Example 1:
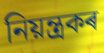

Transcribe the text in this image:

নিয়ন্ত্ৰকৰ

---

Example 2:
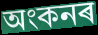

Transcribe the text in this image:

অংকনৰ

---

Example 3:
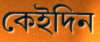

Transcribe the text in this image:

কেইদিন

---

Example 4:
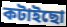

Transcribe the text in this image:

কটাইছো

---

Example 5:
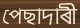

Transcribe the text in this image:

পেছাদাৰী